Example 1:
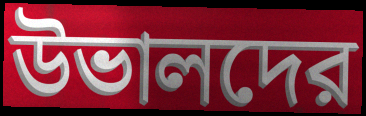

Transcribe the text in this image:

উভালদের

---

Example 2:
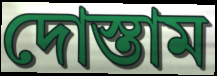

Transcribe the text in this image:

দোস্তাম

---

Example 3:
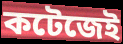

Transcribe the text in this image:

কটেজেই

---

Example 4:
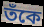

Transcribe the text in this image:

তঁকে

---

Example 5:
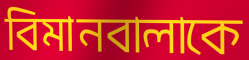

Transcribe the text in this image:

বিমানবালাকে